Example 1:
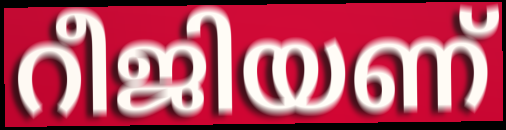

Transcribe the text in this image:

റീജിയണ്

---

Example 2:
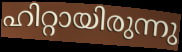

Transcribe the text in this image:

ഹിറ്റായിരുന്നു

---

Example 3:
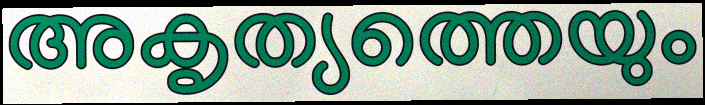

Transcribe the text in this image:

അകൃത്യത്തെയും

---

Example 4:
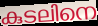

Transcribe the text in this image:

കുടലിനെ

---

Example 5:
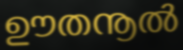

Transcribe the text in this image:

ഊതനൂൽ